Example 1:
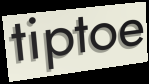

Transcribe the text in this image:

tiptoe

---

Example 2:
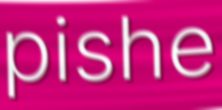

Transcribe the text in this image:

pishe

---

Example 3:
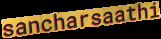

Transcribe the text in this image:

sancharsaathi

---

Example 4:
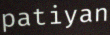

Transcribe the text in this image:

patiyan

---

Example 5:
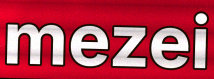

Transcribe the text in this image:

mezei